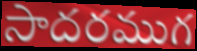
సాదరముగ